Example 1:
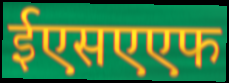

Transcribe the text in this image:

ईएसएएफ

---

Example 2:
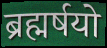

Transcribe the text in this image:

ब्रह्मर्षयो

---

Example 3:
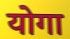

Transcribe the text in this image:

योगा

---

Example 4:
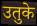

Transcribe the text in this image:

उतुके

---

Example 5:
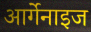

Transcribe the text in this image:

आर्गेनाइज